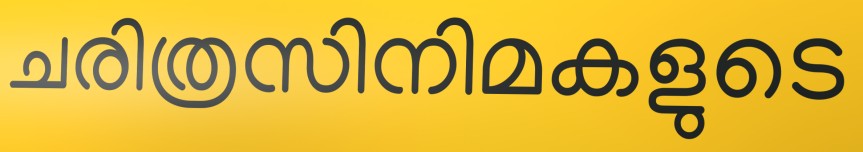
ചരിത്രസിനിമകളുടെ